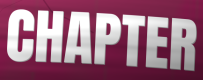
CHAPTER